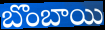
బొంబాయి